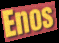
Enos